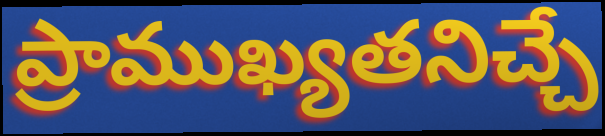
ప్రాముఖ్యతనిచ్చే